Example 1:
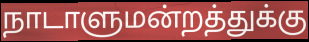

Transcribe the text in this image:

நாடாளுமன்றத்துக்கு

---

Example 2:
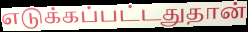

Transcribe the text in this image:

எடுக்கப்பட்டதுதான்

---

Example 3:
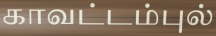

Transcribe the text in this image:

காவட்டம்புல்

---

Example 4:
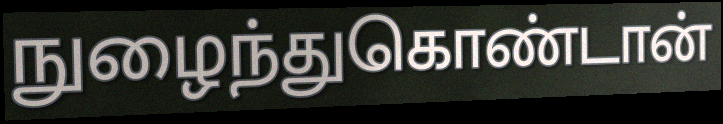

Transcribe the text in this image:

நுழைந்துகொண்டான்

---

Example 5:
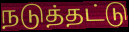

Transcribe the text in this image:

நடுத்தட்டு